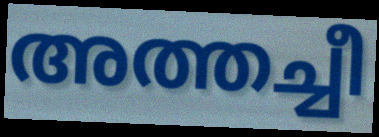
അത്തച്ചീ